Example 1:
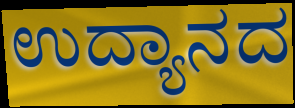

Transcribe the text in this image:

ಉದ್ಯಾನದ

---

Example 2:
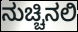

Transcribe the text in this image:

ನುಚ್ಚಿನಲಿ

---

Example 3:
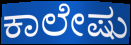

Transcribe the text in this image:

ಕಾಲೇಷು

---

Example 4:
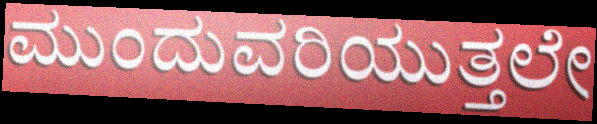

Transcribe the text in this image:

ಮುಂದುವರಿಯುತ್ತಲೇ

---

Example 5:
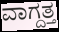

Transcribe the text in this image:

ವಾಗ್ದತ್ತ